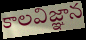
కాలవిజ్ఞాన